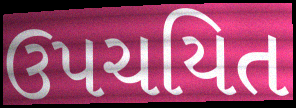
ઉપચયિત